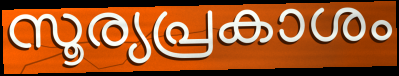
സൂര്യപ്രകാശം